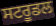
ਸਟਰੂਡਲ